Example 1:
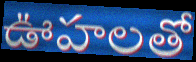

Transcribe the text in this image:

ఊహలతో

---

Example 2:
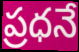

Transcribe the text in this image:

ప్రధనే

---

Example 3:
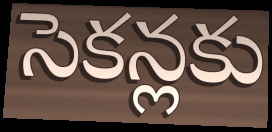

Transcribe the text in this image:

సెకన్లకు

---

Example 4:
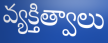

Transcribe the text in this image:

వ్యక్తిత్వాలు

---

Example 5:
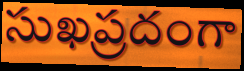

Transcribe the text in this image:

సుఖప్రదంగా